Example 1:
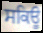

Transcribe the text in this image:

ਸਕਿਊ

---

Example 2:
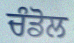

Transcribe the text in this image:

ਚੰਡੋਲ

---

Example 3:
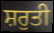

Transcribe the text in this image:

ਸ਼ਰੁਤੀ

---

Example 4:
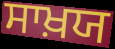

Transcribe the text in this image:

ਸਾਖ਼ਯ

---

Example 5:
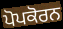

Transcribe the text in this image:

ਪੋਪਕੋਰਨ